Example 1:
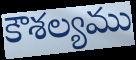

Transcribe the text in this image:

కౌశల్యము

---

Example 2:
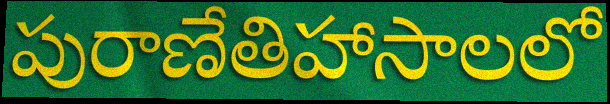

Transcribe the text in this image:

పురాణేతిహాసాలలో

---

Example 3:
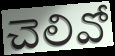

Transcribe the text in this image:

చెలివో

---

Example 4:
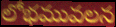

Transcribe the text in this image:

లోభమువలన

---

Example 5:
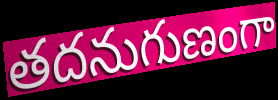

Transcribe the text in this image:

తదనుగుణంగా